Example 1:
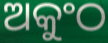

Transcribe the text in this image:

ଅକୁଂଠ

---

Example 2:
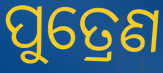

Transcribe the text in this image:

ପୁତ୍ରେଣ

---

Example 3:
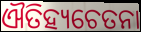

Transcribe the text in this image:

ଐତିହ୍ୟଚେତନା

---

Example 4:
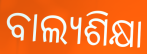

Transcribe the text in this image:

ବାଲ୍ୟଶିକ୍ଷା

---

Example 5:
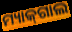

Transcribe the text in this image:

ମ୍ୟାକ୍‌ଗାଲ